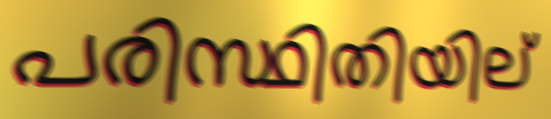
പരിസ്ഥിതിയില്